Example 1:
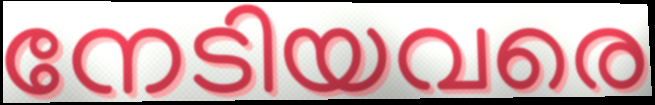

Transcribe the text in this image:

നേടിയവരെ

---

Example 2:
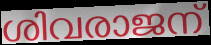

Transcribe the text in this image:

ശിവരാജന്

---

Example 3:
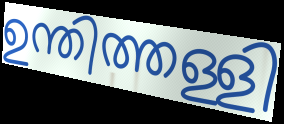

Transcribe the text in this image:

ഉന്തിത്തള്ളി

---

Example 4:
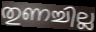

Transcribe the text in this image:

തുണച്ചില്ല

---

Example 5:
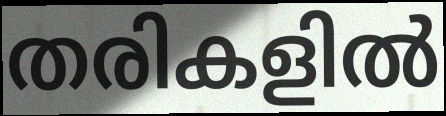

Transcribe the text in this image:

തരികളിൽ